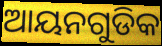
ଆୟନଗୁଡିକ